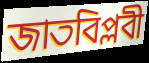
জাতবিপ্লবী